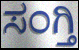
ಸಂಗ್ತಿ